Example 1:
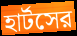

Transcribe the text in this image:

হার্টসের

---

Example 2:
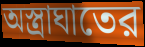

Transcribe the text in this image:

অস্ত্রাঘাতের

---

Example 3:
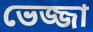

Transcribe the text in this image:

ভেজ্জা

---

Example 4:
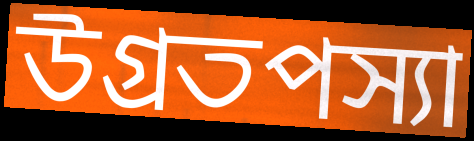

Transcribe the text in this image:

উগ্রতপস্যা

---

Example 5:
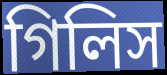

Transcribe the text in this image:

গিলিস